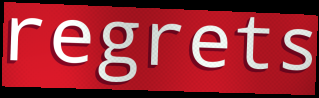
regrets